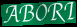
ABORI